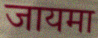
जायमा